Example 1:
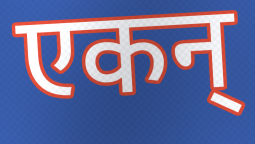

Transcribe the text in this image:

एकन्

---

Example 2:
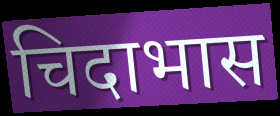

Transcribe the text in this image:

चिदाभास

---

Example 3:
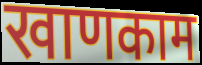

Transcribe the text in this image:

खाणकाम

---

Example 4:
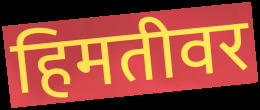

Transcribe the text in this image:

हिमतीवर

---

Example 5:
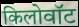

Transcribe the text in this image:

किलोवॉट